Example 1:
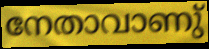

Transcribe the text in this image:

നേതാവാണു്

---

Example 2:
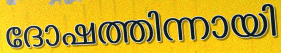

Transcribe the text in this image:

ദോഷത്തിന്നായി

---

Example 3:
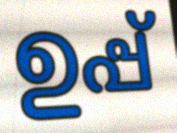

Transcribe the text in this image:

ഉപ്പ്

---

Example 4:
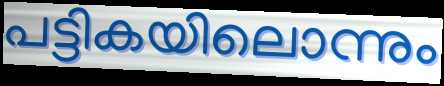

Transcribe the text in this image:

പട്ടികയിലൊന്നും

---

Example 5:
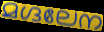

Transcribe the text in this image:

മഗ്ദലേന